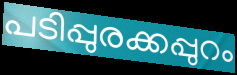
പടിപ്പുരക്കപ്പുറം